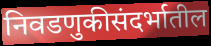
निवडणुकीसंदर्भातील